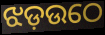
ଝଡ଼ଉଠେ